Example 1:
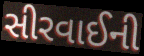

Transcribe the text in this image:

સીરવાઈની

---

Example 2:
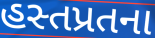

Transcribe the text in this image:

હસ્તપ્રતના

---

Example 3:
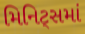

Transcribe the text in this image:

મિનિટ્સમાં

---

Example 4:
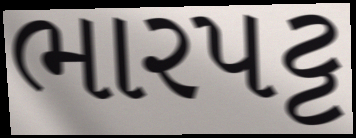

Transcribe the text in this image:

ભારપટ્ટ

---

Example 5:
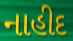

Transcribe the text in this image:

નાહીદ